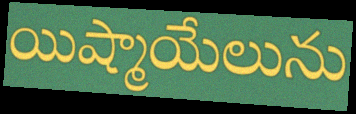
యిష్మాయేలును